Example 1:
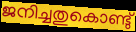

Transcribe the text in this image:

ജനിച്ചതുകൊണ്ടു്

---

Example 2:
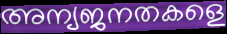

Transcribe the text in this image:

അന്യജനതകളെ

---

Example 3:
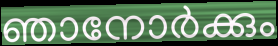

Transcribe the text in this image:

ഞാനോർക്കും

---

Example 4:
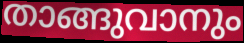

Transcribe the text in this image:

താങ്ങുവാനും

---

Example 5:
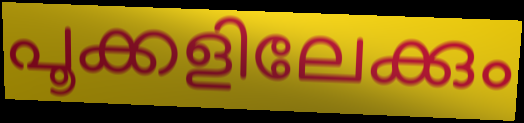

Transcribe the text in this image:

പൂക്കളിലേക്കും